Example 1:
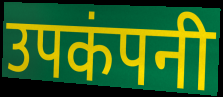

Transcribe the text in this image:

उपकंपनी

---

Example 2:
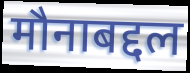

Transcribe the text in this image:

मौनाबद्दल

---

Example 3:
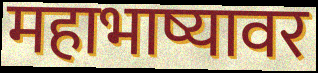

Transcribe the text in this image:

महाभाष्यावर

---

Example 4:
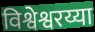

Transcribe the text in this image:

विश्वेश्वरय्या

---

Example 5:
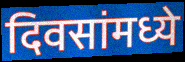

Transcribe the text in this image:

दिवसांमध्ये